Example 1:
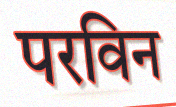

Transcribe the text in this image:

परविन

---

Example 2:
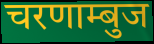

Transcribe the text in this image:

चरणाम्बुज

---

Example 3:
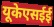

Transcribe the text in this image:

यूकेएसईई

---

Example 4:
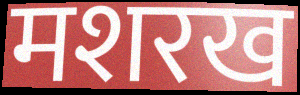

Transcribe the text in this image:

मशरख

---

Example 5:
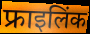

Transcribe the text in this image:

फ्राइलिंक